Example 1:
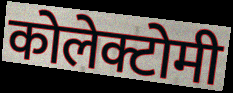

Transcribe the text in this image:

कोलेक्टोमी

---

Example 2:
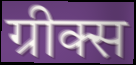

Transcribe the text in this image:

ग्रीक्स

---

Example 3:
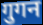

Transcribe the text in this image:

गुगन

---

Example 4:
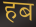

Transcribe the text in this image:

हब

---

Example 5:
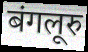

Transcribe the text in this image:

बंगलूरु